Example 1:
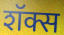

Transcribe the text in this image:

शॅक्स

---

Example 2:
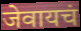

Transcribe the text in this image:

जेवायचं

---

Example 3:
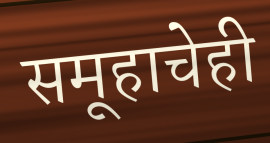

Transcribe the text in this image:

समूहाचेही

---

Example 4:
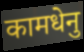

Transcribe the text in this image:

कामधेनु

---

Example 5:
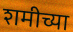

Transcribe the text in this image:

शमीच्या